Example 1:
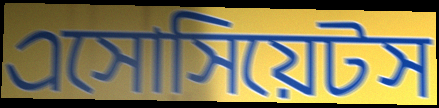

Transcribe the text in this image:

এসোসিয়েটস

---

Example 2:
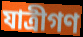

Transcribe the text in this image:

যাত্রীগণ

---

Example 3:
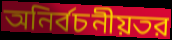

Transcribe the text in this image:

অনির্বচনীয়তর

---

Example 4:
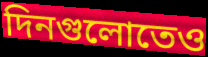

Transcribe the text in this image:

দিনগুলোতেও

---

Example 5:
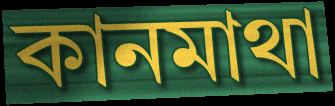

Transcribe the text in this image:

কানমাথা